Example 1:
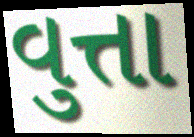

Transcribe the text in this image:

વુત્તા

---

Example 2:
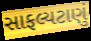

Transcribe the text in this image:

સાફલ્યટાણું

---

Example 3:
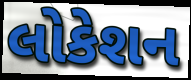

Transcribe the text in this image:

લોકેશન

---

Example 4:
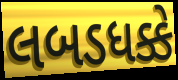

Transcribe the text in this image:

લબડધક્કે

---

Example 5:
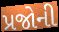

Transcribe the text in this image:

પ્રજોની